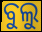
ବୁଲୁ